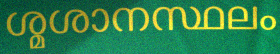
ശ്മശാനസ്ഥലം